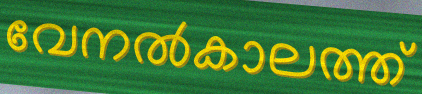
വേനൽകാലത്ത്